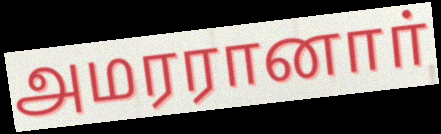
அமரரானார்